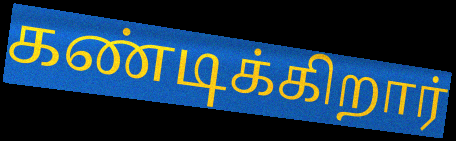
கண்டிக்கிறார்